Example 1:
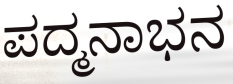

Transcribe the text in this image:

ಪದ್ಮನಾಭನ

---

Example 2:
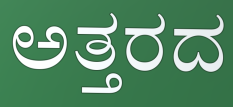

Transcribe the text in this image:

ಅತ್ತರದ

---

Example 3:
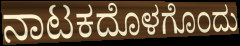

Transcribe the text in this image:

ನಾಟಕದೊಳಗೊಂದು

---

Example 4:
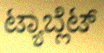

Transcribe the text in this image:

ಟ್ಯಾಬ್ಲೆಟ್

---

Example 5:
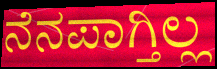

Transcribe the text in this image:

ನೆನಪಾಗ್ತಿಲ್ಲ